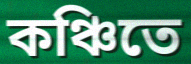
কঞ্চিতে